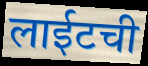
लाईटची